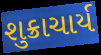
શુક્રાચાર્ય